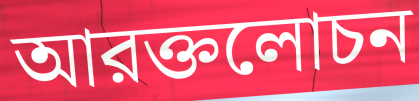
আরক্তলোচন